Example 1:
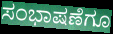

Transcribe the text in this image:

ಸಂಭಾಷಣೆಗೂ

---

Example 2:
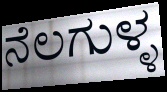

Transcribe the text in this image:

ನೆಲಗುಳ್ಳ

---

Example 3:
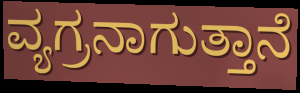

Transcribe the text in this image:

ವ್ಯಗ್ರನಾಗುತ್ತಾನೆ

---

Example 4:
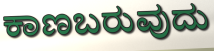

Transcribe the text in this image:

ಕಾಣಬರುವುದು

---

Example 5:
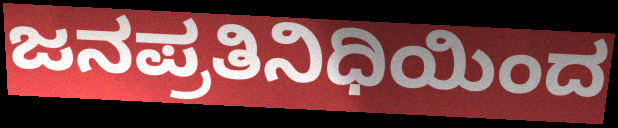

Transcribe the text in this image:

ಜನಪ್ರತಿನಿಧಿಯಿಂದ